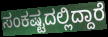
ಸಂಕಷ್ಟದಲ್ಲಿದ್ದಾರೆ